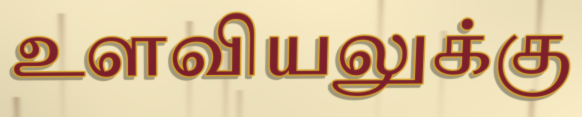
உளவியலுக்கு